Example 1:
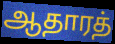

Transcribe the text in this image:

ஆதாரத்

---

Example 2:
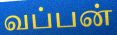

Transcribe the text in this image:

வப்பன்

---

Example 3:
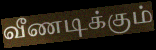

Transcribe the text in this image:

வீணடிக்கும்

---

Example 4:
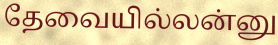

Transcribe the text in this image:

தேவையில்லன்னு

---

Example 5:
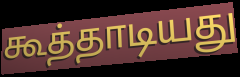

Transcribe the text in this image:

கூத்தாடியது